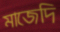
মাজেদি